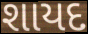
શાયદ